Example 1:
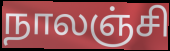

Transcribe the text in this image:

நாலஞ்சி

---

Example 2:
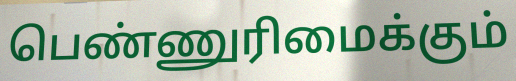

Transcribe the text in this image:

பெண்ணுரிமைக்கும்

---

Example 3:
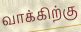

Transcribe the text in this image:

வாக்கிற்கு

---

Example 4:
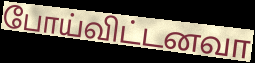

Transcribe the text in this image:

போய்விட்டனவா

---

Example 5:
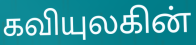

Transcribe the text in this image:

கவியுலகின்